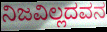
ನಿಜವಿಲ್ಲದವನ